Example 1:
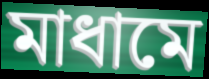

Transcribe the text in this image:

মাধামে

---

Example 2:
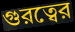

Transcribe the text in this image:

গুরত্বের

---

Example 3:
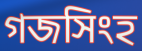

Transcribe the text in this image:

গজসিংহ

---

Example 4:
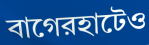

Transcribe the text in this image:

বাগেরহাটেও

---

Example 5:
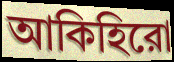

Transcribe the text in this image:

আকিহিরো